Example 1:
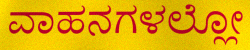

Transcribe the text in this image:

ವಾಹನಗಳಲ್ಲೋ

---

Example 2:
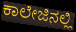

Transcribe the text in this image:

ಕಾಲೇಜಿನಲ್ಲಿ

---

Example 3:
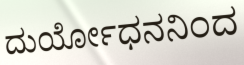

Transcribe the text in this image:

ದುರ್ಯೋಧನನಿಂದ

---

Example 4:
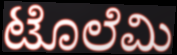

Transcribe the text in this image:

ಟೊಲೆಮಿ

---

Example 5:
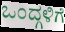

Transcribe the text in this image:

ಒಂದ್ಗಳಿಗೆ